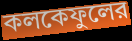
কলকেফুলের